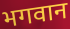
भगवान